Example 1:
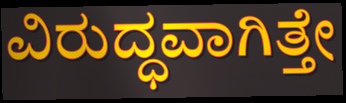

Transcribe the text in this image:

ವಿರುದ್ಧವಾಗಿತ್ತೇ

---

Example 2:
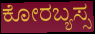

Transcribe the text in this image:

ಕೋರಬ್ಯಸ್ಸ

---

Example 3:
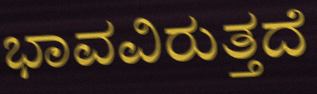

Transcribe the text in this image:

ಭಾವವಿರುತ್ತದೆ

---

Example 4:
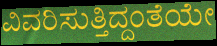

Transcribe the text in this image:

ವಿವರಿಸುತ್ತಿದ್ದಂತೆಯೇ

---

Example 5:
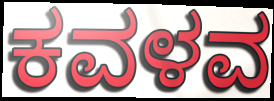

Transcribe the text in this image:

ಕವಳವ